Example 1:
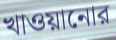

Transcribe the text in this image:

খাওয়ানোর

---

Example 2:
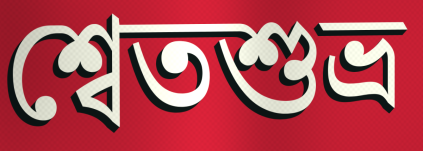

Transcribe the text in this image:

শ্বেতশুভ্র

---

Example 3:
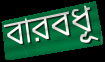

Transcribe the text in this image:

বারবধূ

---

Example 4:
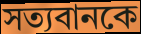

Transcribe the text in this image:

সত্যবানকে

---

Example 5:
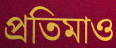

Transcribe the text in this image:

প্রতিমাও